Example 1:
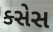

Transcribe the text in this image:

ક્સેસ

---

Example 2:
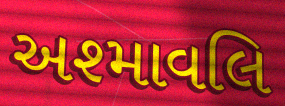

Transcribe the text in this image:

અશ્માવલિ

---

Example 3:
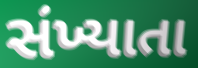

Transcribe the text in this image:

સંખ્યાતા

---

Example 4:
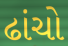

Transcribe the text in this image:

ઢાંચો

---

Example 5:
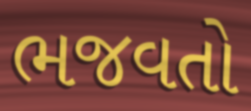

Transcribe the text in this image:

ભજવતો